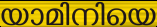
യാമിനിയെ